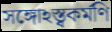
সঙ্গোঽস্ত্বকর্মণি